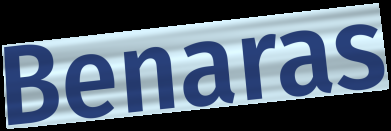
Benaras